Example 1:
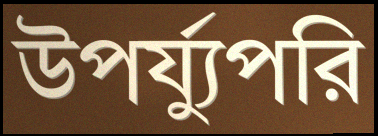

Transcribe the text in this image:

উপর্য্যুপরি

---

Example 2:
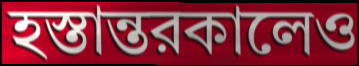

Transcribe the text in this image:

হস্তান্তরকালেও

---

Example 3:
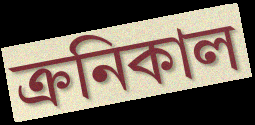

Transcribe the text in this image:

ক্রনিকাল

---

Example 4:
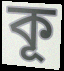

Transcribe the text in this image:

কূ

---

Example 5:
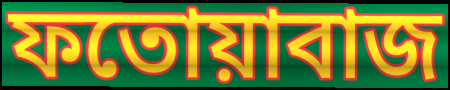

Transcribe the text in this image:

ফতোয়াবাজ